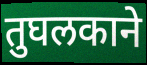
तुघलकाने